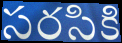
సరసికి